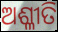
ଅଶ୍ଳୀତି